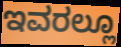
ಇವರಲ್ಲೂ